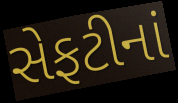
સેફટીનાં